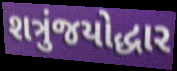
શત્રુંજયોદ્ધાર